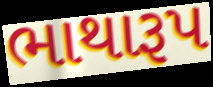
ભાથારૂપ